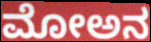
ಮೋಅನ